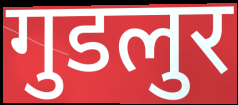
गुडलुर